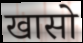
खासो